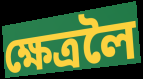
ক্ষেত্ৰলৈ